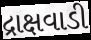
દ્રાક્ષવાડી